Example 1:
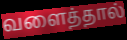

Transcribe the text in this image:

வளைத்தால்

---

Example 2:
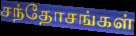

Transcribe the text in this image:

சந்தோசங்கள்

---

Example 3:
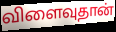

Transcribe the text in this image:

விளைவுதான்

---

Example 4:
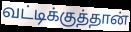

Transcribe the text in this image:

வட்டிக்குத்தான்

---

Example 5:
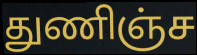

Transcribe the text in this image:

துணிஞ்ச